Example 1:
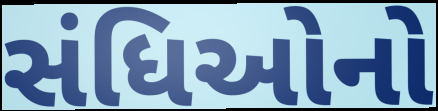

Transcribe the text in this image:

સંધિઓનો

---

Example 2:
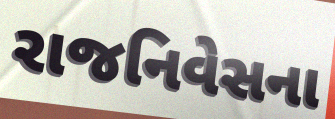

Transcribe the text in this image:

રાજનિવેસના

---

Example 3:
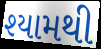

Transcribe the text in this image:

શ્યામથી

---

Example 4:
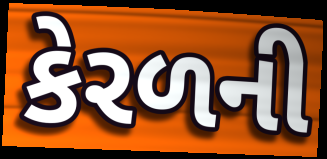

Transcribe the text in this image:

કેરળની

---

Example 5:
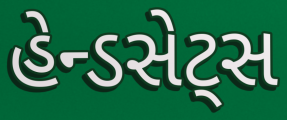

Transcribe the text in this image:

હેન્ડસેટ્સ